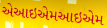
એઆઇએમઆઇએમ